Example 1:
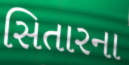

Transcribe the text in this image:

સિતારના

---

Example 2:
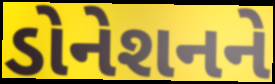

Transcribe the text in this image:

ડોનેશનને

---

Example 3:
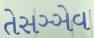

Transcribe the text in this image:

તેસઞ્ઞેવ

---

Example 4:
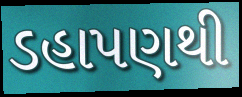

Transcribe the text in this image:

ડહાપણથી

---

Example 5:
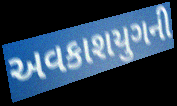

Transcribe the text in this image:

અવકાશયુગની